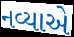
નવ્યાએ